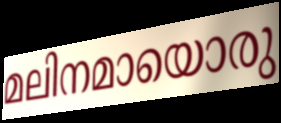
മലിനമായൊരു